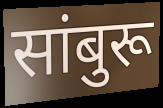
सांबुरू